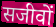
सजीवों